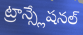
ట్రాన్స్లేషనల్